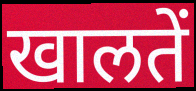
खालतें